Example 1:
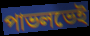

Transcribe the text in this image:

পাভলভেই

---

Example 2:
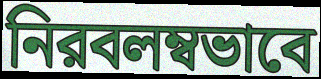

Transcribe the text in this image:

নিরবলম্বভাবে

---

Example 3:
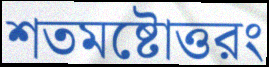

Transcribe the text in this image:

শতমষ্টোত্তরং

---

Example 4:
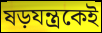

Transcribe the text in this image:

ষড়যন্ত্রকেই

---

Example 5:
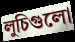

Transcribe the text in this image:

লুচিগুলো